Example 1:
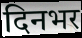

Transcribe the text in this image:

दिनभर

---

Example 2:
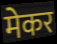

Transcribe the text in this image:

मेकर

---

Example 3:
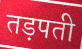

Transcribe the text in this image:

तड़पती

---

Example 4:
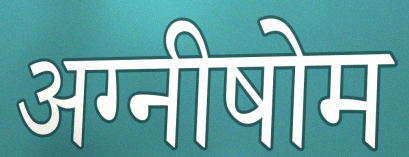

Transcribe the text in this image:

अग्नीषोम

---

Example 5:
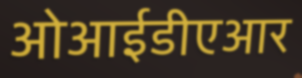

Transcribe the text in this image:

ओआईडीएआर